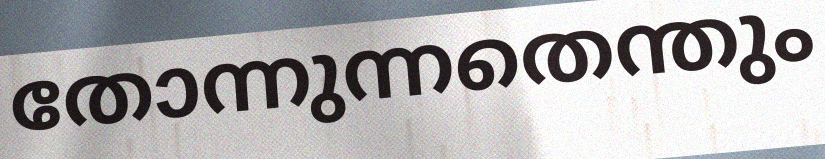
തോന്നുന്നതെന്തും